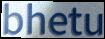
bhetu